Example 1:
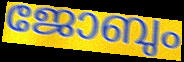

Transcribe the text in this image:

ജോബും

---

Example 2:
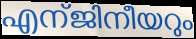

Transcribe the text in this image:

എന്ജിനീയറും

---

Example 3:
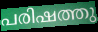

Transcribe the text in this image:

പരിഷത്തു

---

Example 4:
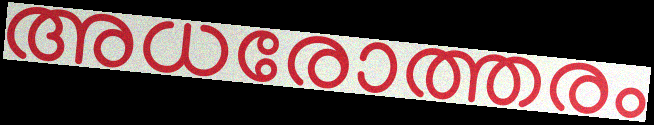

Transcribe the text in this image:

അധരോത്തരം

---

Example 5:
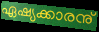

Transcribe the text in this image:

ഏഷ്യക്കാരനു്